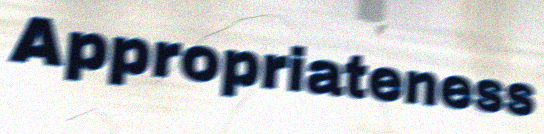
Appropriateness